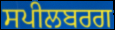
ਸਪੀਲਬਰਗ